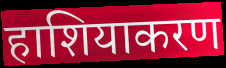
हाशियाकरण